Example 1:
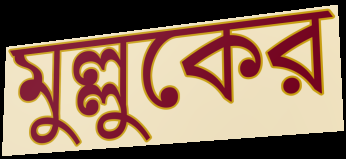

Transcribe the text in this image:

মুল্লুকের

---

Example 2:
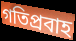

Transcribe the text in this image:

গতিপ্রবাহ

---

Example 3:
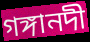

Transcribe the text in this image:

গঙ্গানদী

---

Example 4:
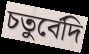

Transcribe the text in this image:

চতুর্বেদি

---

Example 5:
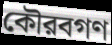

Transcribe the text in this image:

কৌরবগণ